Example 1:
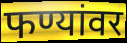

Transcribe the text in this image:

फण्यांवर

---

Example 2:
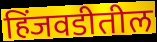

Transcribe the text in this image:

हिंजवडीतील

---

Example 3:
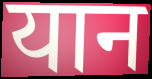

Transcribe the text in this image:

यान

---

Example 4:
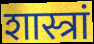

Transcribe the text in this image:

शास्त्रां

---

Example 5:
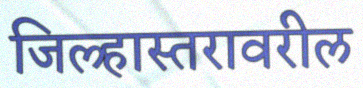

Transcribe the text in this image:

जिल्हास्तरावरील